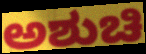
ಅಶುಚಿ